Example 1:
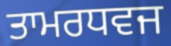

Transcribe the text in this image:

ਤਾਮਰਧਵਜ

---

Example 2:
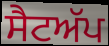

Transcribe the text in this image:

ਸੈਟਅੱਪ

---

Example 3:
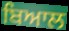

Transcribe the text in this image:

ਬਿਆਲ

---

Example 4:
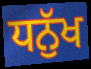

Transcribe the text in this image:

ਧਨੁੱਖ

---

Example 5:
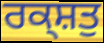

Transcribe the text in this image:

ਰਕ੍ਸ਼ਤੁ